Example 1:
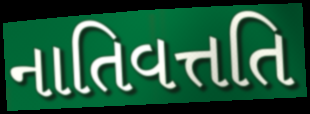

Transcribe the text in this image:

નાતિવત્તતિ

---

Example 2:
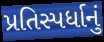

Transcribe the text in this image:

પ્રતિસ્પર્ધાનું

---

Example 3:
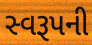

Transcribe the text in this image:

સ્વરૂપની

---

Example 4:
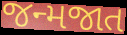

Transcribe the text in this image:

જન્મજાત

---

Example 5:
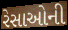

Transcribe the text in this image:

રેસાઓની